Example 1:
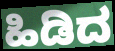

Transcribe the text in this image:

ಹಿಡಿದ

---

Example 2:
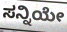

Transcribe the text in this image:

ಸನ್ನಿಯೇ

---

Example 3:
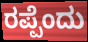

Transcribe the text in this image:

ರಪ್ಪೆಂದು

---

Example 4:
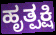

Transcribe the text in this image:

ಹೃತ್ಪಕ್ಷಿ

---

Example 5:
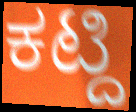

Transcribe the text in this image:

ಕಟ್ದಿ